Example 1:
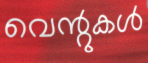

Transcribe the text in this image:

വെന്റുകൾ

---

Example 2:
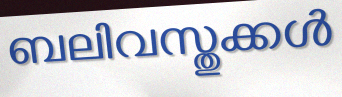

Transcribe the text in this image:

ബലിവസ്തുക്കൾ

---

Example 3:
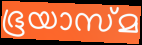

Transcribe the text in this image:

ഭൂയാസ്മ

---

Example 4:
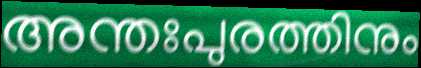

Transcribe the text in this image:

അന്തഃപുരത്തിനും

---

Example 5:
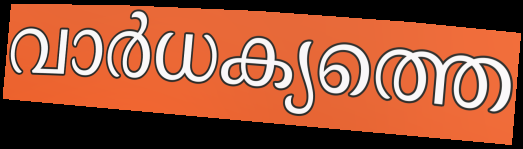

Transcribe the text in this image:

വാർധക്യത്തെ